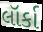
લૉર્કા